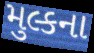
મુલ્કના